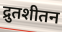
द्रुतशीतन